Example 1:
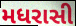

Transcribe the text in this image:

મધરાસી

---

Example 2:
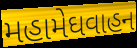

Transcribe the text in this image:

મહામેઘવાહન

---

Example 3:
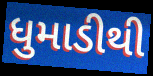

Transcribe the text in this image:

ધુમાડીથી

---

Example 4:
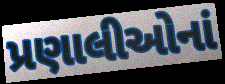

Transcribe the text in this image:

પ્રણાલીઓનાં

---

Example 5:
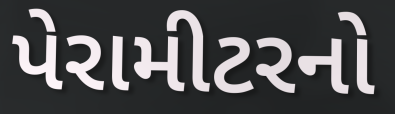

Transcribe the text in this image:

પેરામીટરનો